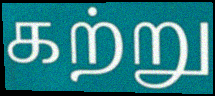
கற்று